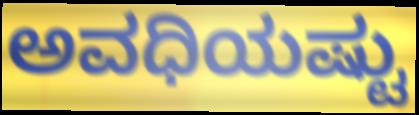
ಅವಧಿಯಷ್ಟು